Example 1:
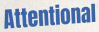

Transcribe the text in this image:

Attentional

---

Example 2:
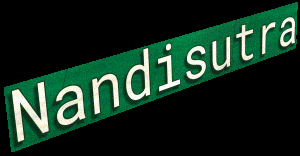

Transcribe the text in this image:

Nandisutra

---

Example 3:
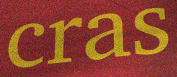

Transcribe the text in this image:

cras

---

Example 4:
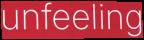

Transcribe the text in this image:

unfeeling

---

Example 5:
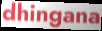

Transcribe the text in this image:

dhingana